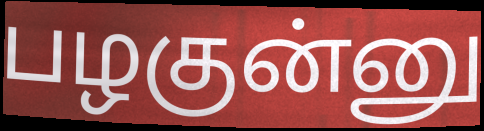
பழகுன்னு